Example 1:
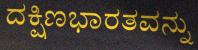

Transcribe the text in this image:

ದಕ್ಷಿಣಭಾರತವನ್ನು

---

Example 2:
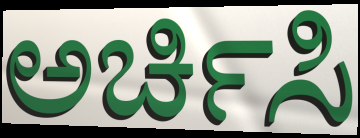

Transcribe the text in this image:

ಅರ್ಚಿಸಿ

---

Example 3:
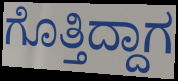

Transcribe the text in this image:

ಗೊತ್ತಿದ್ದಾಗ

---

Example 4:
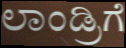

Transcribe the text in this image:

ಲಾಂಡ್ರಿಗೆ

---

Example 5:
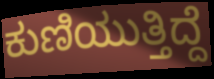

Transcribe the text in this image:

ಕುಣಿಯುತ್ತಿದ್ದೆ